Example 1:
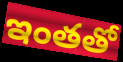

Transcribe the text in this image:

ఇంతతో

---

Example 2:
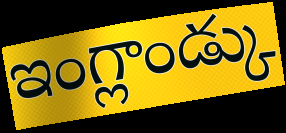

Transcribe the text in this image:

ఇంగ్లాండ్కు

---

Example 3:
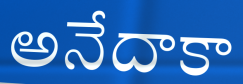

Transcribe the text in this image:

అనేదాకా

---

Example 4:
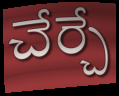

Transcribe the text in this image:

చేర్చే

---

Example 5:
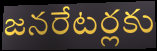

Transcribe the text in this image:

జనరేటర్లకు